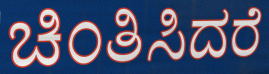
ಚಿಂತಿಸಿದರೆ